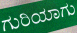
ಗುರಿಯಾಗು